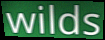
wilds